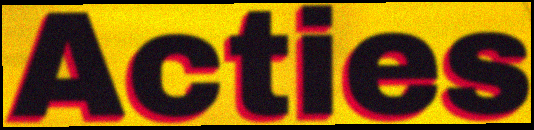
Acties